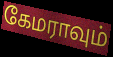
கேமராவும்